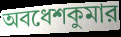
অবধেশকুমার